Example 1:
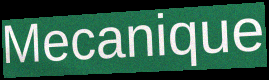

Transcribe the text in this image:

Mecanique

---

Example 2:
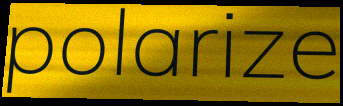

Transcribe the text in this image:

polarize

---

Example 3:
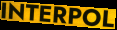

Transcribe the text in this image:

INTERPOL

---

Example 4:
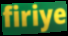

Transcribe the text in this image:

firiye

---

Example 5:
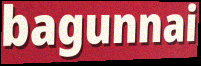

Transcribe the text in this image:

bagunnai